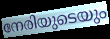
നേരിയുടെയും